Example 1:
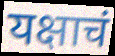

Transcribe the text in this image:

यक्षाचं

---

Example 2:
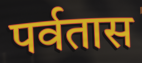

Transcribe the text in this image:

पर्वतास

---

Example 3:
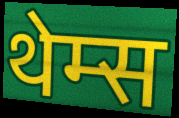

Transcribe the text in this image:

थेम्स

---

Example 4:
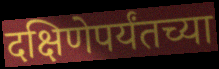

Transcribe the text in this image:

दक्षिणेपर्यंतच्या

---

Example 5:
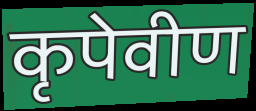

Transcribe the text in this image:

कृपेवीण